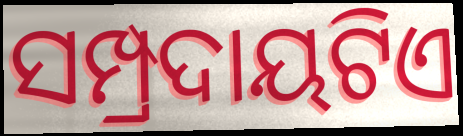
ସମ୍ପ୍ରଦାୟଟିଏ